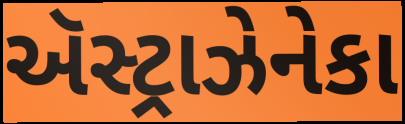
ઍસ્ટ્રાઝેનેકા